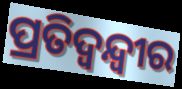
ପ୍ରତିଦ୍ବନ୍ଦ୍ବୀର